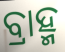
ବ୍ରାହ୍ମ